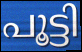
പൂട്ടി